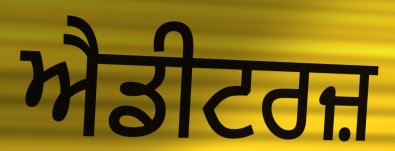
ਐਡੀਟਰਜ਼